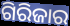
ଗିରିଜାର